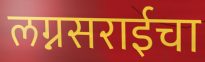
लग्नसराईचा